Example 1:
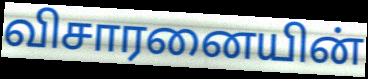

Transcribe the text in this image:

விசாரனையின்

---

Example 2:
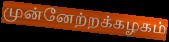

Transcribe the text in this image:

முன்னேற்றக்கழகம்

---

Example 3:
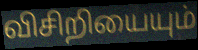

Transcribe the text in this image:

விசிறியையும்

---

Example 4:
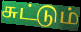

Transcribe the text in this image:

சுட்டும்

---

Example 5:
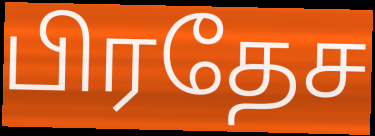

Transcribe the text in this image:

பிரதேச